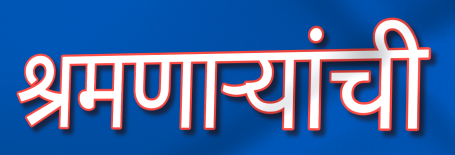
श्रमणाऱ्यांची